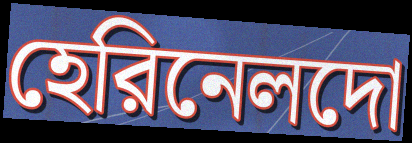
হেরিনেলদো